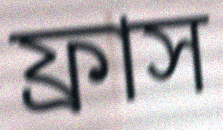
ফ্রাস